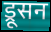
ड्रूसन